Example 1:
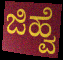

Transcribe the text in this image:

ಜಿಹ್ವೆ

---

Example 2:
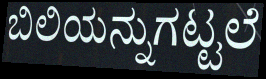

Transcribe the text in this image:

ಬಿಲಿಯನ್ನುಗಟ್ಟಲೆ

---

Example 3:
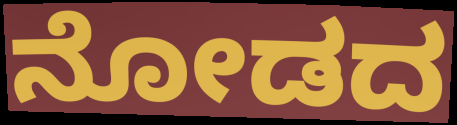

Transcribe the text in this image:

ನೋಡದ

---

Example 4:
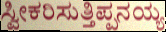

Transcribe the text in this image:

ಸ್ವೀಕರಿಸುತ್ತಿಪ್ಪನಯ್ಯ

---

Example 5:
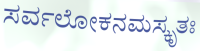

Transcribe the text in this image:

ಸರ್ವಲೋಕನಮಸ್ಕೃತಃ